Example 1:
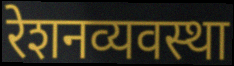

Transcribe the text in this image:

रेशनव्यवस्था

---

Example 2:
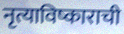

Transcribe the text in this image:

नृत्याविष्काराची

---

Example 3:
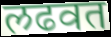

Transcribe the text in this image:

लढवत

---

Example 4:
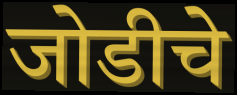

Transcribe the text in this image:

जोडीचे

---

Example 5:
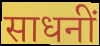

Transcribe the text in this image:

साधनीं